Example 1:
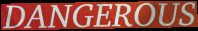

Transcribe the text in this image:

DANGEROUS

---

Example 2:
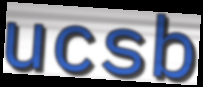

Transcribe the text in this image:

ucsb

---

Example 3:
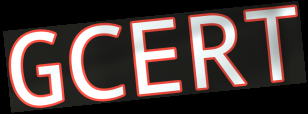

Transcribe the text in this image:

GCERT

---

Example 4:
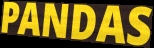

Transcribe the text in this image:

PANDAS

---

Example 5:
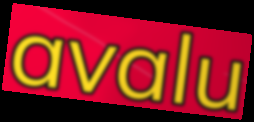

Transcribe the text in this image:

avalu